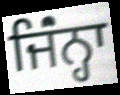
ਜਿੰਂਨ੍ਹਾ